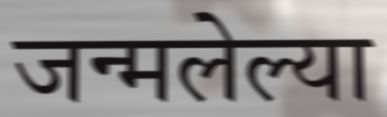
जन्मलेल्या